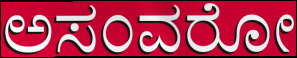
ಅಸಂವರೋ